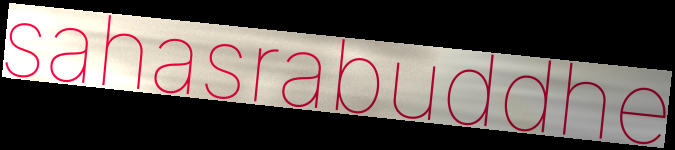
sahasrabuddhe